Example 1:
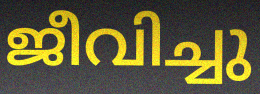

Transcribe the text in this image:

ജീവിച്ചു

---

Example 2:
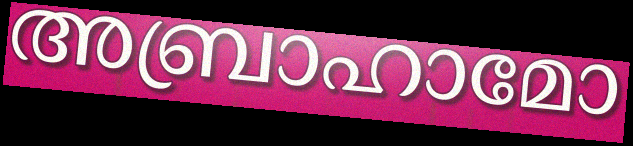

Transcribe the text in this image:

അബ്രാഹാമോ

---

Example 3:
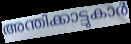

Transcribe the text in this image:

അന്തിക്കാട്ടുകാർ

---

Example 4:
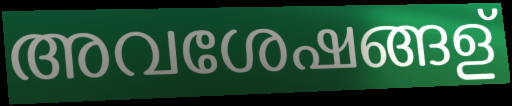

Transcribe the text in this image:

അവശേഷങ്ങള്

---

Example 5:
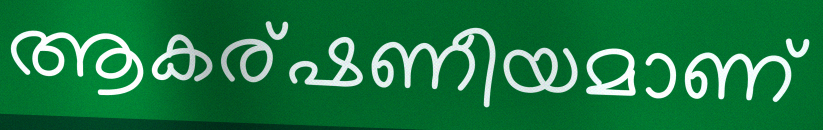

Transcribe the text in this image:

ആകര്ഷണീയമാണ്